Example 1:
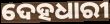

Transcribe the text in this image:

ଦେହଧାରୀ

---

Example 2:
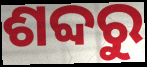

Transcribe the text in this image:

ଶବ୍ଦରୁ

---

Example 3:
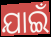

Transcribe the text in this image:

ଯାଇଁ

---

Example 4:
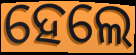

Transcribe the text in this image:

ହେଲେ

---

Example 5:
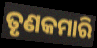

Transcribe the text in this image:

ତୃଣକମାରି